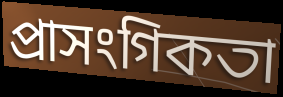
প্ৰাসংগিকতা